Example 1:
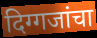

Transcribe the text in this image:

दिग्गजांचा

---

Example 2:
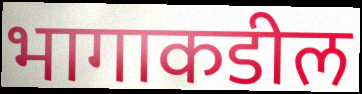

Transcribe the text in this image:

भागाकडील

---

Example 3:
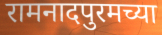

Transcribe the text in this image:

रामनादपुरमच्या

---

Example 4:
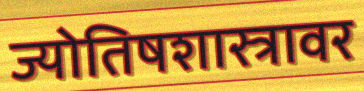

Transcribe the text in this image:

ज्योतिषशास्त्रावर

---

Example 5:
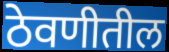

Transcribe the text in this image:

ठेवणीतील